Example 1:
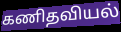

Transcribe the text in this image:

கணிதவியல்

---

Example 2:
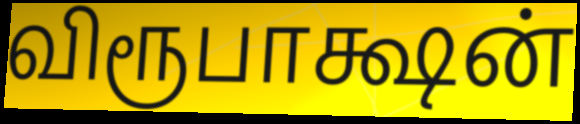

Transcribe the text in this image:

விரூபாக்ஷன்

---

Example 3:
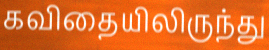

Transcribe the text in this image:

கவிதையிலிருந்து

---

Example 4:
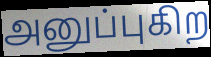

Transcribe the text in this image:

அனுப்புகிற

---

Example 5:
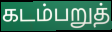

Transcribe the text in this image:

கடம்பறுத்